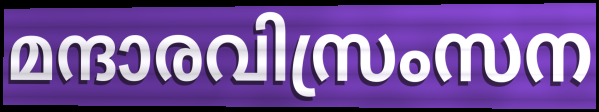
മന്ദാരവിസ്രംസന